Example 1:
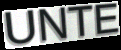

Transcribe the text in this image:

UNTE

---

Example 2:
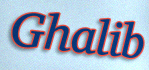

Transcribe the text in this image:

Ghalib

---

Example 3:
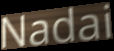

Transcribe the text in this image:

Nadai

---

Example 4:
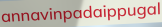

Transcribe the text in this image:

annavinpadaippugal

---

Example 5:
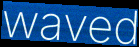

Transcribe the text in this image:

waved